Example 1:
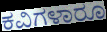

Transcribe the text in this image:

ಕವಿಗಳಾರೂ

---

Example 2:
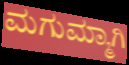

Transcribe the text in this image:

ಮಗುಮ್ಮಾಗಿ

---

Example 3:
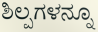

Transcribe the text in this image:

ಶಿಲ್ಪಗಳನ್ನೂ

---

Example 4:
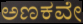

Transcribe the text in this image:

ಅಣಕವೇ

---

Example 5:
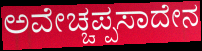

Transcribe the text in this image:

ಅವೇಚ್ಚಪ್ಪಸಾದೇನ